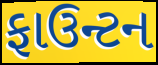
ફાઉન્ટન